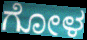
ಗೋಳ